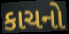
કાચનો